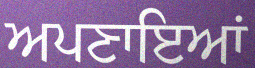
ਅਪਣਾਇਆਂ